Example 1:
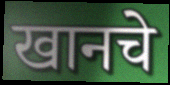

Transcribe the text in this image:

खानचे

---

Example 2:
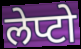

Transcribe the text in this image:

लेप्टो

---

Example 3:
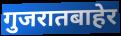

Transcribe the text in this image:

गुजरातबाहेर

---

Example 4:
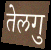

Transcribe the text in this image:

तेलगु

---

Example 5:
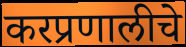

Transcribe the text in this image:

करप्रणालीचे